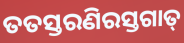
ତତସ୍ତରଣିରସ୍ତଗାତ୍